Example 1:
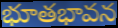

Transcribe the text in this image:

భూతభావన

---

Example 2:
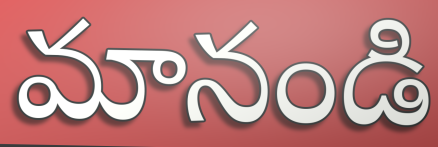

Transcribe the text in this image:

మానండి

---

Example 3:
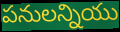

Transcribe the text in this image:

పనులన్నియు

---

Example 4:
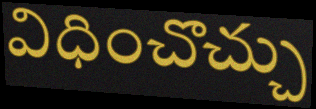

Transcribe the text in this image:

విధించొచ్చు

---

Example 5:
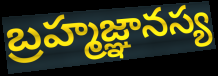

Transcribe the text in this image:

బ్రహ్మజ్ఞానస్య